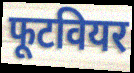
फूटवियर